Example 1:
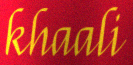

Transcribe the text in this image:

khaali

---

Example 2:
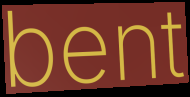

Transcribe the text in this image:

bent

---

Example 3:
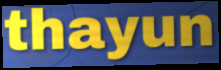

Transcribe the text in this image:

thayun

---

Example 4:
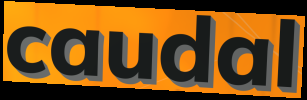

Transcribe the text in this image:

caudal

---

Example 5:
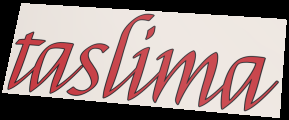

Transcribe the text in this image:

taslima